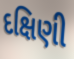
દક્ષિણી